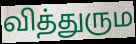
வித்துரும